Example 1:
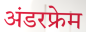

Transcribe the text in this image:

अंडरफ्रेम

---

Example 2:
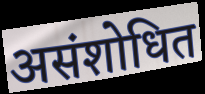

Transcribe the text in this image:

असंशोधित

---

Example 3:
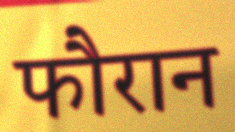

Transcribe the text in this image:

फौरान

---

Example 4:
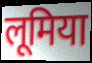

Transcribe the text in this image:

लूमिया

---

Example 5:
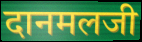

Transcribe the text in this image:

दानमलजी